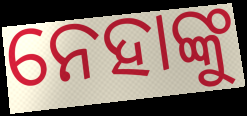
ନେହାଙ୍କୁ